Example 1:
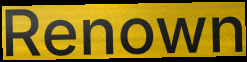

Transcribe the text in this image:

Renown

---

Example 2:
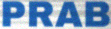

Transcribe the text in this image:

PRAB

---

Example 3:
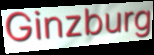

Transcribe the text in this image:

Ginzburg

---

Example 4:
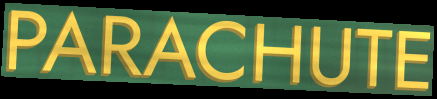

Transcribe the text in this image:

PARACHUTE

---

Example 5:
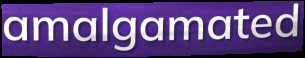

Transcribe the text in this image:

amalgamated